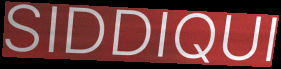
SIDDIQUI